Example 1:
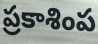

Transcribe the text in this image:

ప్రకాశింప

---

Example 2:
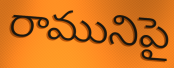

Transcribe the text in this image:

రామునిపై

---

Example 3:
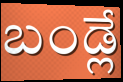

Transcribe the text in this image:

బండ్లే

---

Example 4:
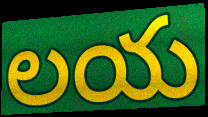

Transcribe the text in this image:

లయ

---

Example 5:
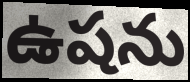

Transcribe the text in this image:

ఉషను